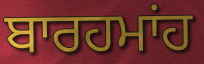
ਬਾਰਹਮਾਂਹ